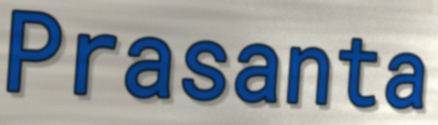
Prasanta